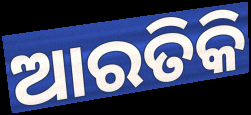
ଆରତିକି